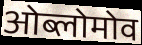
ओब्लोमोव